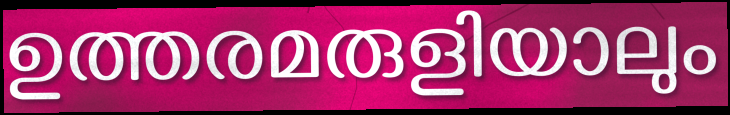
ഉത്തരമരുളിയാലും